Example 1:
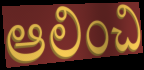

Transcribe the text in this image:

ఆలించి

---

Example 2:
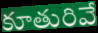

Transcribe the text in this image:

కూతురివే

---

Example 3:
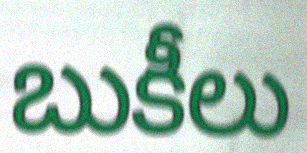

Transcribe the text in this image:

బుకీలు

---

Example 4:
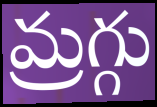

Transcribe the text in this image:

మ్రగ్గు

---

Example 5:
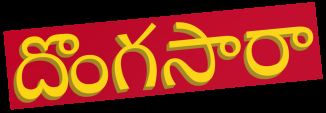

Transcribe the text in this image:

దొంగసారా